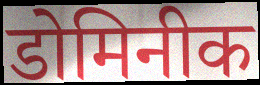
डोमिनीक